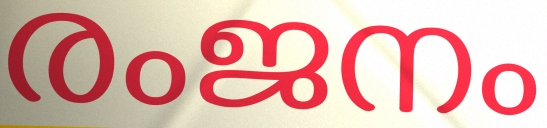
രംജനം